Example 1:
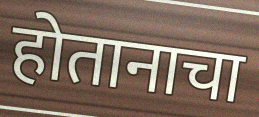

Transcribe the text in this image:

होतानाचा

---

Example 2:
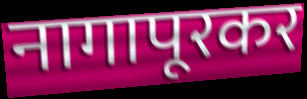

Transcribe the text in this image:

नागापूरकर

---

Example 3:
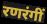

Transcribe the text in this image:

रणरंगीं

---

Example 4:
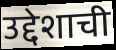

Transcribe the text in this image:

उद्देशाची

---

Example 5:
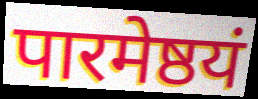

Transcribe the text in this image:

पारमेष्ठयं